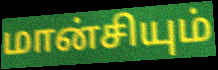
மான்சியும்